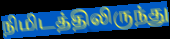
நிமிடத்திலிருந்து